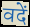
वदें